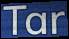
Tar